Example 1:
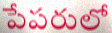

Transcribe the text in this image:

పేపరులో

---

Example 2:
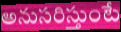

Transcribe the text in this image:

అనుసరిస్తుంటే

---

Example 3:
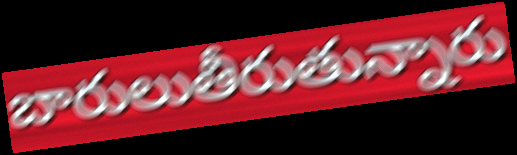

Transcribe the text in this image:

బారులుతీరుతున్నారు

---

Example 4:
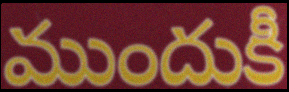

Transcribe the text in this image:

ముందుకీ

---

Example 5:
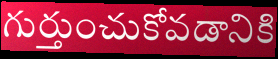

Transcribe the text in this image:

గుర్తుంచుకోవడానికి